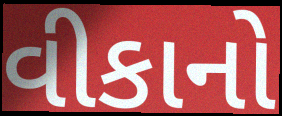
વીકાનો